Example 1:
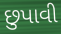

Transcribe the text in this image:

છુપાવી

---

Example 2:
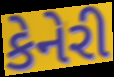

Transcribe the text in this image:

કેનેરી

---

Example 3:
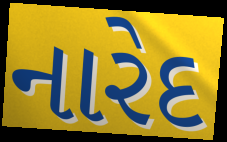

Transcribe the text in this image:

નારેદ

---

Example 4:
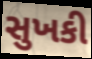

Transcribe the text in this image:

સુખકી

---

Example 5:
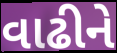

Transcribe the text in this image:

વાઢીને